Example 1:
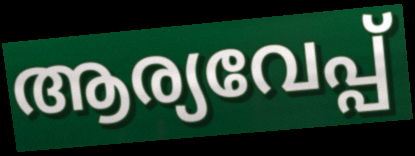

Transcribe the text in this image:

ആര്യവേപ്പ്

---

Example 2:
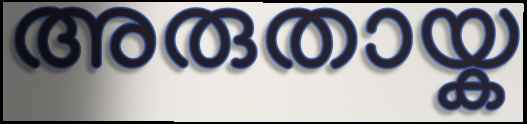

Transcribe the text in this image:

അരുതായ്ക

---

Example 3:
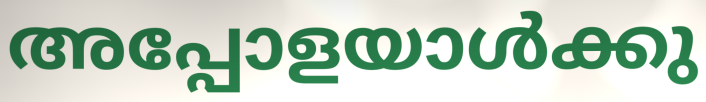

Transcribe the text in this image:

അപ്പോളയാൾക്കു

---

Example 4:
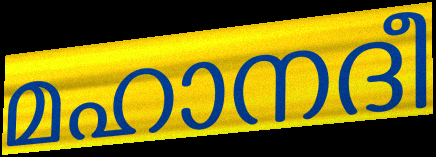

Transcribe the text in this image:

മഹാനദീ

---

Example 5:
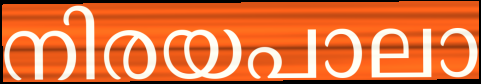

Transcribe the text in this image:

നിരയപാലാ